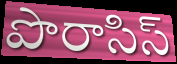
పొరాసిస్